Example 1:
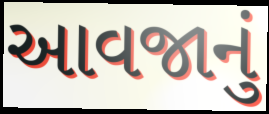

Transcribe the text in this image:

આવજાનું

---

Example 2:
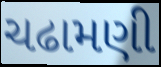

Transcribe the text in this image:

ચઢામણી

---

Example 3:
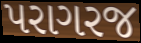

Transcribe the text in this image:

પરાગરજ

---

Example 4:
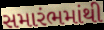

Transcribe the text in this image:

સમારંભમાંથી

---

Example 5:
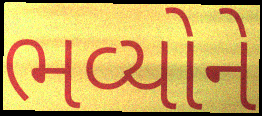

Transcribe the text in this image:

ભવ્યોને